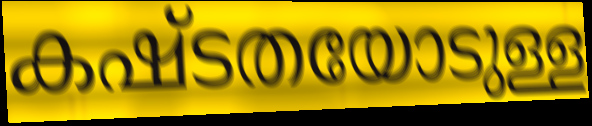
കഷ്ടതയോടുള്ള